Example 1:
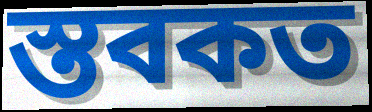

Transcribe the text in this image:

স্তবকত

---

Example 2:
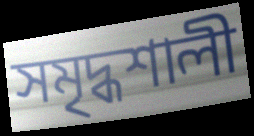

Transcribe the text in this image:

সমৃদ্ধশালী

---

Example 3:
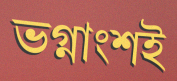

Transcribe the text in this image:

ভগ্নাংশই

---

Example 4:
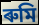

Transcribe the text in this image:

ৰুমি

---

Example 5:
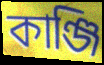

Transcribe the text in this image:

কাঞ্জি